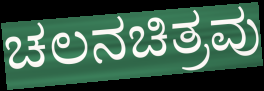
ಚಲನಚಿತ್ರವು